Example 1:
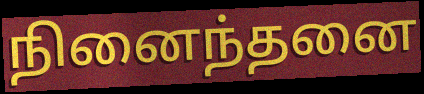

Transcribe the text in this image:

நினைந்தனை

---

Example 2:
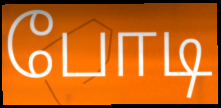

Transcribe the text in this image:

போடி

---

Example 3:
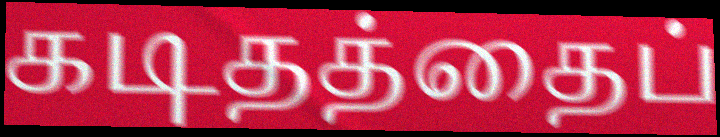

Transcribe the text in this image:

கடிதத்தைப்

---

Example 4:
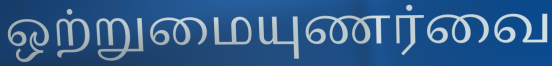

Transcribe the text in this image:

ஒற்றுமையுணர்வை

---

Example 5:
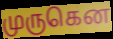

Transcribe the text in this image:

முருகென